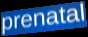
prenatal